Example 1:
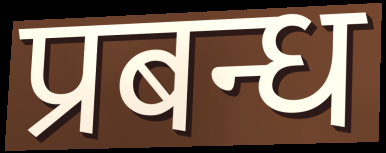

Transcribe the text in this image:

प्रबन्ध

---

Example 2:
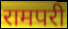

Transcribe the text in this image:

रामपरी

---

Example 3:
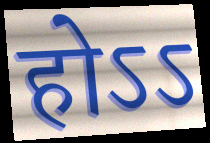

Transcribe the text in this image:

होऽऽ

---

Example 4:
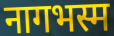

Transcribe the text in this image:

नागभस्म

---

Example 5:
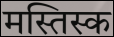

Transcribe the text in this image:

मस्तिस्क